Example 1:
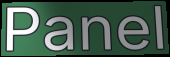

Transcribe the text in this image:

Panel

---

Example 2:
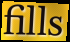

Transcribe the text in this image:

fills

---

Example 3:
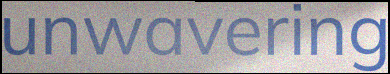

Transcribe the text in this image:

unwavering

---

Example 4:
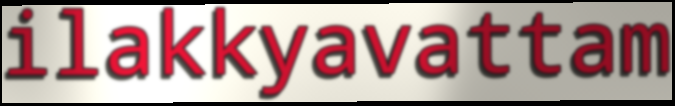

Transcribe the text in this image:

ilakkyavattam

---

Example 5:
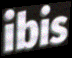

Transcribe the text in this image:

ibis